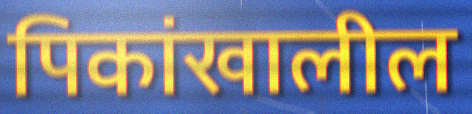
पिकांखालील